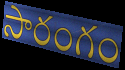
సారంగం